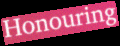
Honouring